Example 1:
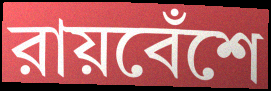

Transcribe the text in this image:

রায়বেঁশে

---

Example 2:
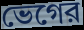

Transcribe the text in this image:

ভেগের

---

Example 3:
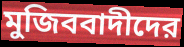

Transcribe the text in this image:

মুজিববাদীদের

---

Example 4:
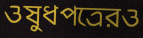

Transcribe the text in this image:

ওষুধপত্রেরও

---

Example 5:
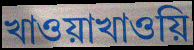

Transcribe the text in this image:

খাওয়াখাওয়ি